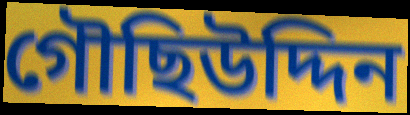
গৌছিউদ্দিন